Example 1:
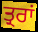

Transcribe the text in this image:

ਤ੍ਰਰਾਂ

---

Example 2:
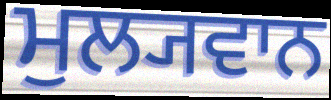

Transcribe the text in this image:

ਮੁਲ੍ਯਵਾਨ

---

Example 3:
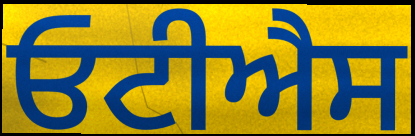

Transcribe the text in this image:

ਓਟੀਐਸ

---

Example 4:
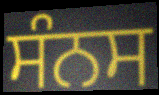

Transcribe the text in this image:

ਸੰਨਸ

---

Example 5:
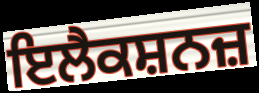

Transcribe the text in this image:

ਇਲੈਕਸ਼ਨਜ਼